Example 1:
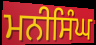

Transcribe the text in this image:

ਮਨੀਸਿੰਘ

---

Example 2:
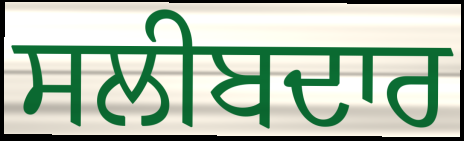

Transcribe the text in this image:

ਸਲੀਬਦਾਰ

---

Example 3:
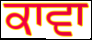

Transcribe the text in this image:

ਕਾਵਾ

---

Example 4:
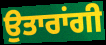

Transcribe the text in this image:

ਉਤਾਰਾਂਗੀ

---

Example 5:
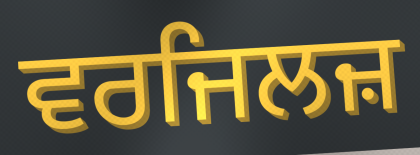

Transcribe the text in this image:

ਵਰਜਿਲਜ਼